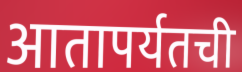
आतापर्यतची